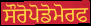
ਸੌਰੋਪੋਡੋਮੋਰਫ